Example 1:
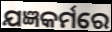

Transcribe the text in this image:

ଯଜ୍ଞକର୍ମରେ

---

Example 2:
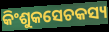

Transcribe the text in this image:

କିଂଶୁକସେଚକସ୍ୟ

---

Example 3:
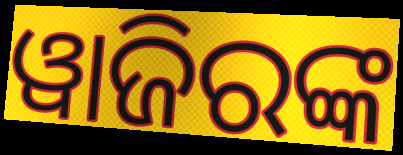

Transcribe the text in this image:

ୱାଜିରଙ୍କ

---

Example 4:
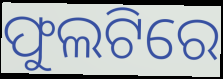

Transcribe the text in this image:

ଫୁଲଟିରେ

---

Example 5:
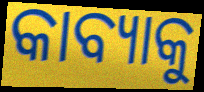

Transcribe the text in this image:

କାବ୍ୟାକୁ